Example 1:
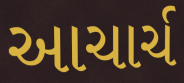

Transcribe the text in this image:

આચાર્ચ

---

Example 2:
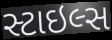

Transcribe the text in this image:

સ્ટાઇલ્સ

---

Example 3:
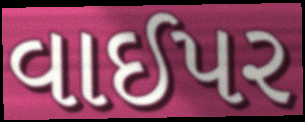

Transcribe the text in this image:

વાઈપર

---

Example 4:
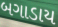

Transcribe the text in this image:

બગાડાય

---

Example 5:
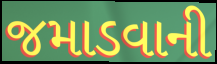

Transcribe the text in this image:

જમાડવાની